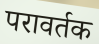
परावर्तक